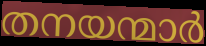
തനയന്മാർ